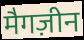
मैगज़ीन